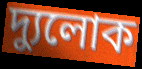
দ্যুলোক